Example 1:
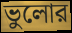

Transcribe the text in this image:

ভুলোর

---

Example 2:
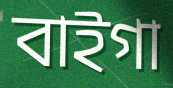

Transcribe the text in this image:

বাইগা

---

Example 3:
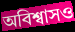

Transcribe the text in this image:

অবিশ্বাসও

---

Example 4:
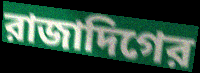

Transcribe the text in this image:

রাজাদিগের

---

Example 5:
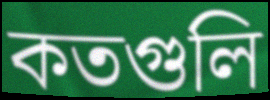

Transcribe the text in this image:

কতগুলি